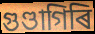
গুণ্ডাগিৰি